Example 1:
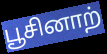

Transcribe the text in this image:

பூசினாற்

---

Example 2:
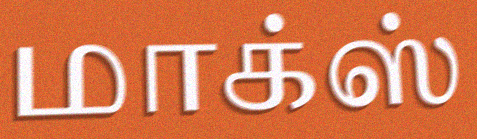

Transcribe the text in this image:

மாக்ஸ்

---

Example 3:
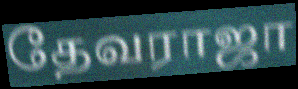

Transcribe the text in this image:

தேவராஜா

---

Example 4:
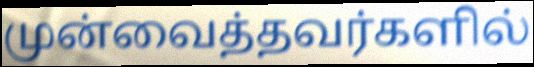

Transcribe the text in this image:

முன்வைத்தவர்களில்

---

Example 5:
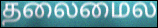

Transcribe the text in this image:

தலைமைல